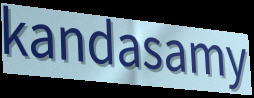
kandasamy